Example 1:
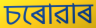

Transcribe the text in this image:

চৰোৱাৰ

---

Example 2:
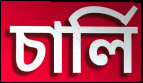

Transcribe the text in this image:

চাৰ্লি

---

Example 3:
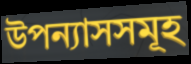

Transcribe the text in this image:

উপন্যাসসমূহ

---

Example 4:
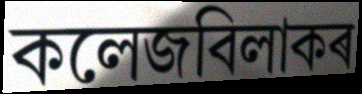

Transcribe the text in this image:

কলেজবিলাকৰ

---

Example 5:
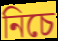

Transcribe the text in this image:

নিচে